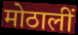
मोठालीं